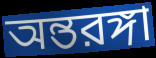
অন্তরঙ্গা